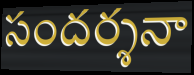
సందర్శనా